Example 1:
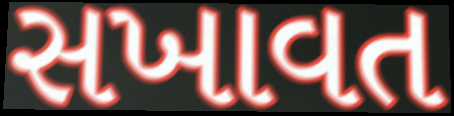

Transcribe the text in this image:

સખાવત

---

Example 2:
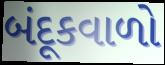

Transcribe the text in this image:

બંદૂકવાળો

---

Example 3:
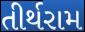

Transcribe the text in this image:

તીર્થરામ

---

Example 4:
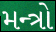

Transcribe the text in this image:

મન્ત્રો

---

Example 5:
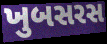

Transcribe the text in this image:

ખુબસરસ